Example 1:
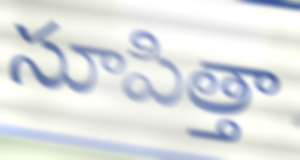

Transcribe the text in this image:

సూపిత్తా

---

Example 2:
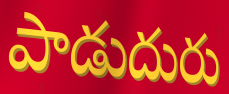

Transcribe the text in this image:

పాడుదురు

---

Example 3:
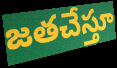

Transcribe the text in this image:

జతచేస్తూ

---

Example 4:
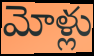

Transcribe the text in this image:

మోళ్లు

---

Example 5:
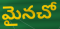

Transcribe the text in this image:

మైనచో